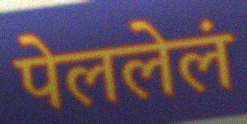
पेललेलं